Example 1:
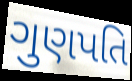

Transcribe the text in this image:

ગુણપતિ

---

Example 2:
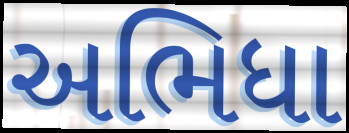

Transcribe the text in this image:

અભિધા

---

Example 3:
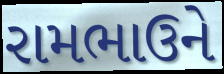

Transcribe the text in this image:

રામભાઉને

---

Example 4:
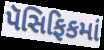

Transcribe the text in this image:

પૅસિફિકમાં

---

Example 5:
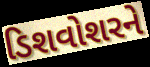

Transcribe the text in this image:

ડિશવોશરને